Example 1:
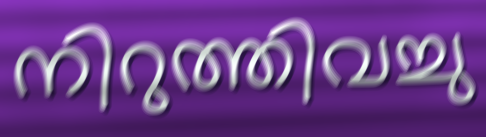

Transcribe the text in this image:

നിറുത്തിവച്ചു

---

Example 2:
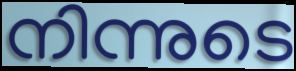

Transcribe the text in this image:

നിന്നുടെ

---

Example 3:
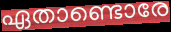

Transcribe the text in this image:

ഏതാണ്ടൊരേ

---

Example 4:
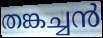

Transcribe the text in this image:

തങ്കച്ചൻ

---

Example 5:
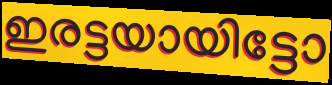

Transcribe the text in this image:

ഇരട്ടയായിട്ടോ